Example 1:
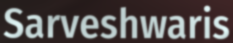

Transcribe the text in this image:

Sarveshwaris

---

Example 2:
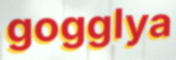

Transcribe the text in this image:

gogglya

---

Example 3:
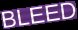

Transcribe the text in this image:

BLEED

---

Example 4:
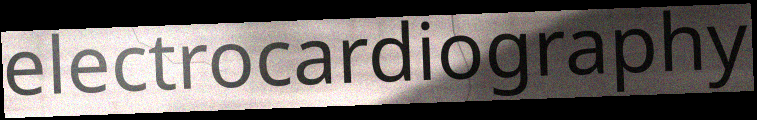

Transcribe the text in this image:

electrocardiography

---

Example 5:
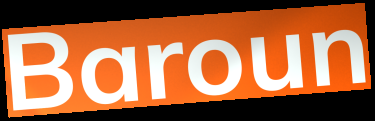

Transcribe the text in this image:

Baroun